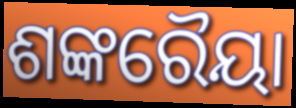
ଶଙ୍କରୈୟା